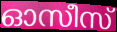
ഓസീസ്